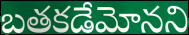
బతకడేమోనని